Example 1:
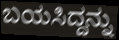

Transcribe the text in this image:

ಬಯಸಿದ್ದನ್ನು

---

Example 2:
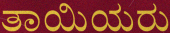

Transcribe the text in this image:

ತಾಯಿಯರು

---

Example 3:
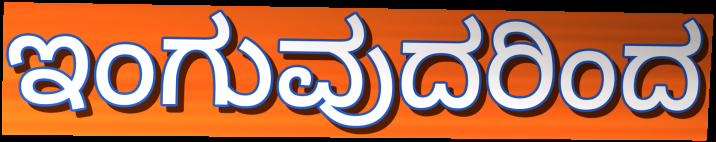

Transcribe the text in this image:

ಇಂಗುವುದರಿಂದ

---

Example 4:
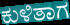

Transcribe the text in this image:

ಕುಳಿತಾಗ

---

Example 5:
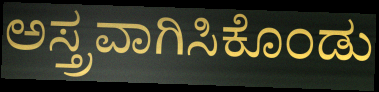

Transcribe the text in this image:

ಅಸ್ತ್ರವಾಗಿಸಿಕೊಂಡು